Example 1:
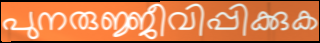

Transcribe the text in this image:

പുനരുജ്ജീവിപ്പിക്കുക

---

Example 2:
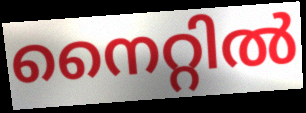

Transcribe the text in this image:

നൈറ്റിൽ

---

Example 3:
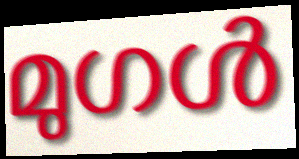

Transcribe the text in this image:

മുഗൾ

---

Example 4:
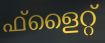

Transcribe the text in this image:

ഫ്ളൈറ്റ്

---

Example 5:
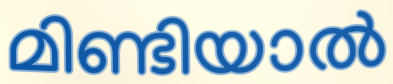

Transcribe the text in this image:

മിണ്ടിയാൽ